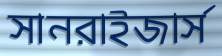
সানরাইজার্স